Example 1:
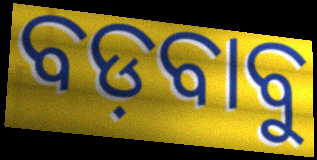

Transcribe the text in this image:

ବଡ଼ବାବୁ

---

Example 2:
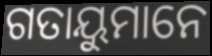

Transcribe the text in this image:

ଗତାୟୁମାନେ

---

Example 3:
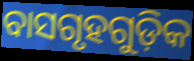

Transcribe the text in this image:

ବାସଗୃହଗୁଡ଼ିକ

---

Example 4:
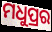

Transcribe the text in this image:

ମଧୁପ୍ରର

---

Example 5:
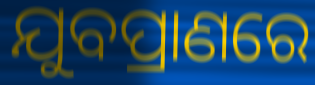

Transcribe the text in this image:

ଯୁବପ୍ରାଣରେ